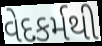
વેદકર્મથી